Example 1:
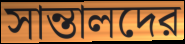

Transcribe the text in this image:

সান্তালদের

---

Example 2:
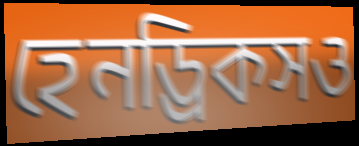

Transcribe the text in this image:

হেনড্রিকসও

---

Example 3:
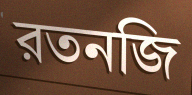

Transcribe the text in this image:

রতনজি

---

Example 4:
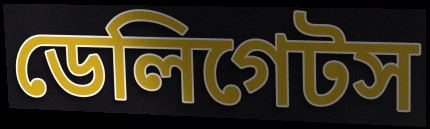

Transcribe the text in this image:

ডেলিগেটস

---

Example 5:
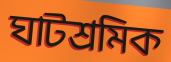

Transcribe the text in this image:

ঘাটশ্রমিক